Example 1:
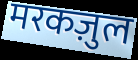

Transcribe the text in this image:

मरकज़ुल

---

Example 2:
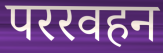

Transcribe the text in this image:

पररवहन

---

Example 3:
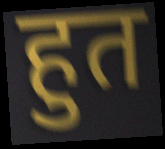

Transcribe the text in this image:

हुत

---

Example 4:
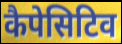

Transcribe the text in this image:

कैपेसिटिव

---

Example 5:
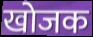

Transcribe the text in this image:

खोजक